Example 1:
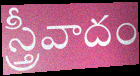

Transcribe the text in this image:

స్త్రీవాదం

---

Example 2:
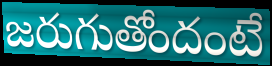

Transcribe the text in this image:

జరుగుతోందంటే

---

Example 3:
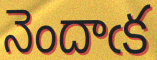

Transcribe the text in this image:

నెందాఁక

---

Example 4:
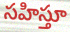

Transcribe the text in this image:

సహిస్తూ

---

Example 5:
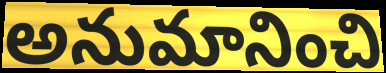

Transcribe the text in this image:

అనుమానించి